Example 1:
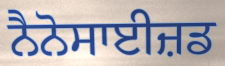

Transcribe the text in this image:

ਨੈਨੋਸਾਈਜ਼ਡ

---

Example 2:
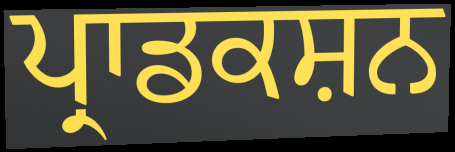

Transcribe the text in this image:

ਪ੍ਰਾਡਕਸ਼ਨ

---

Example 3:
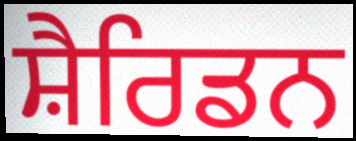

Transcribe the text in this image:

ਸ਼ੈਰਿਡਨ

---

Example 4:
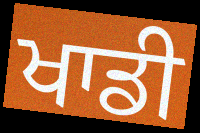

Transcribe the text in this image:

ਖਾਡੀ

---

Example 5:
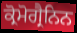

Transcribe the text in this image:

ਕ੍ਰੋਮੋਗ੍ਰੈਨਿਨ